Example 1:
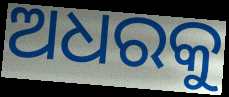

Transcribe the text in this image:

ଅଧରକୁ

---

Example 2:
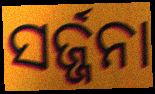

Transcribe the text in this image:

ସର୍ଜ୍ଜନା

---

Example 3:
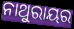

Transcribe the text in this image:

ନାଥୁରାୟର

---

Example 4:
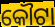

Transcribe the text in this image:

କୌଟା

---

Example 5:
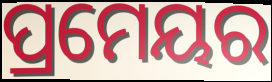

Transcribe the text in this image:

ପ୍ରମେୟର